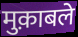
मुक़ाबले